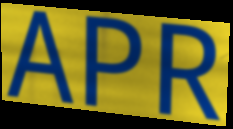
APR